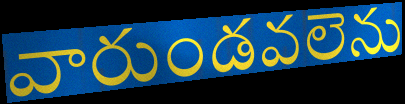
వారుండవలెను